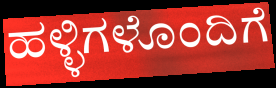
ಹಳ್ಳಿಗಳೊಂದಿಗೆ